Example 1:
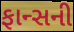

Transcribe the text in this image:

ફાન્સની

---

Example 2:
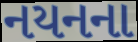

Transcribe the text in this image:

નયનના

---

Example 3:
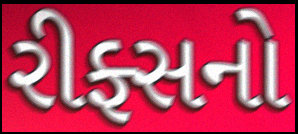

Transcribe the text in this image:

રીફ્સનો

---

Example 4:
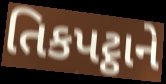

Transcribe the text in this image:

તિકપટ્ઠાને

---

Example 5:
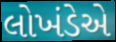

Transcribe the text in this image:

લોખંડેએ